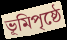
ভূমিপৃষ্ঠে